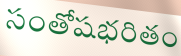
సంతోషభరితం